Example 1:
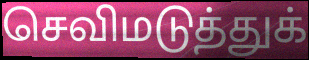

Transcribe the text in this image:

செவிமடுத்துக்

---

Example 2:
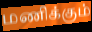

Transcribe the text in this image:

மணிக்கும்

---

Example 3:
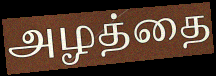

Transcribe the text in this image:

அழத்தை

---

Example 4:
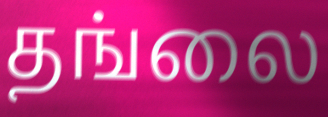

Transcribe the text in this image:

தங்லை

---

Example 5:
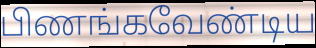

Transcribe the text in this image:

பிணங்கவேண்டிய